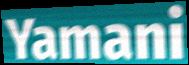
Yamani